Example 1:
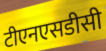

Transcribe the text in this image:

टीएनएसडीसी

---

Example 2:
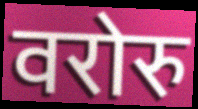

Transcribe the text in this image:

वरोरु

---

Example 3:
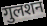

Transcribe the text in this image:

गुलशन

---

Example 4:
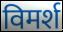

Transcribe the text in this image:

विमर्श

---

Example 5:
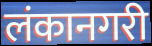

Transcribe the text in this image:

लंकानगरी